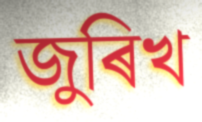
জুৰিখ